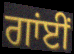
ਗਾਂਈਂ